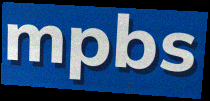
mpbs